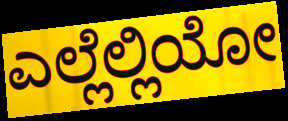
ಎಲ್ಲೆಲ್ಲಿಯೋ